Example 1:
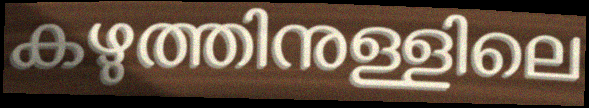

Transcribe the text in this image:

കഴുത്തിനുള്ളിലെ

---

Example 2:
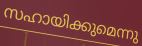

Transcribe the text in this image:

സഹായിക്കുമെന്നു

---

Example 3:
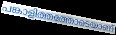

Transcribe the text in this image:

പങ്കാളിത്തത്തോടെയാണ്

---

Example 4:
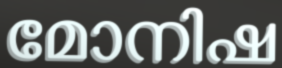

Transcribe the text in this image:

മോനിഷ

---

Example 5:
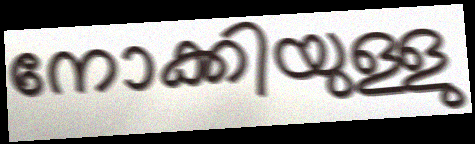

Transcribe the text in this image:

നോക്കിയുള്ളു